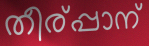
തീര്പ്പാന്